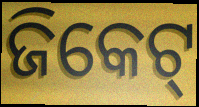
ଜିକେଟ୍